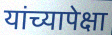
यांच्यापेक्षा